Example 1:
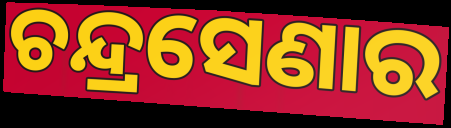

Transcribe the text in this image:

ଚନ୍ଦ୍ରସେଣାର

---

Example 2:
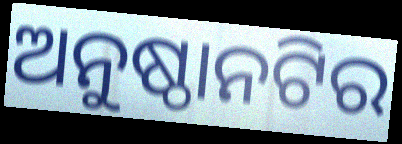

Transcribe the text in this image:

ଅନୁଷ୍ଠାନଟିର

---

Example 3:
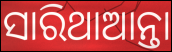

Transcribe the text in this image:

ସାରିଥାଆନ୍ତା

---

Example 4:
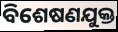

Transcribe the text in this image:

ବିଶେଷଣଯୁକ୍ତ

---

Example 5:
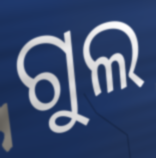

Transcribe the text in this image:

ଗୁଲ